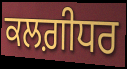
ਕਲਗ਼ੀਧਰ